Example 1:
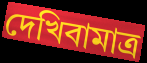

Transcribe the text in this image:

দেখিবামাত্র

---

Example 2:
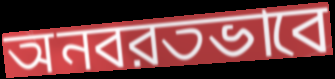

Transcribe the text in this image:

অনবরতভাবে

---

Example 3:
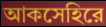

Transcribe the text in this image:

আকসেহিরে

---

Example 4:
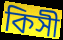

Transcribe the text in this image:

কিসী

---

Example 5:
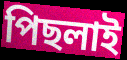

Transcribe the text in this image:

পিছলাই